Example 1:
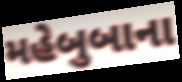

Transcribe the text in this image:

મહેબુબાના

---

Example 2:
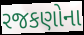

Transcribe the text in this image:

રજકણોના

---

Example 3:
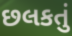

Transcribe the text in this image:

છલકતું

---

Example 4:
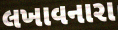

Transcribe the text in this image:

લખાવનારા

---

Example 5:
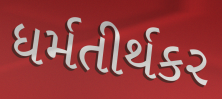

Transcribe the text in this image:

ધર્મતીર્થકર